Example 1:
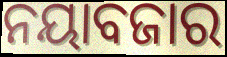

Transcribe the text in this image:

ନୟାବଜାର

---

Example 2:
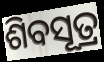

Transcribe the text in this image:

ଶିବସୂତ୍ର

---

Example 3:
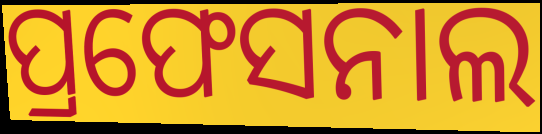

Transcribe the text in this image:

ପ୍ରଫେସନାଲ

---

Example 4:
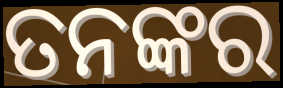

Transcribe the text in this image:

ତନଙ୍କର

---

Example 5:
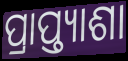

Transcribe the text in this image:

ପ୍ରାପ୍ତ୍ୟାଶା